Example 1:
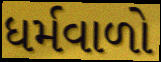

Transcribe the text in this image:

ધર્મવાળો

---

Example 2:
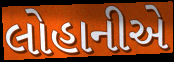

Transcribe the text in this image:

લોહાનીએ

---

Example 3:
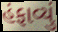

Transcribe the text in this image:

હંફાવ્યું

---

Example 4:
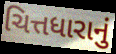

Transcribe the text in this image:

ચિત્તધારાનું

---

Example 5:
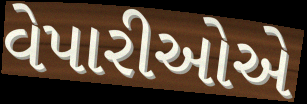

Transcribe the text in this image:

વેપારીઓએ